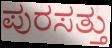
ಪುರಸತ್ತು